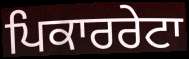
ਪਿਕਾਰਰੇਟਾ